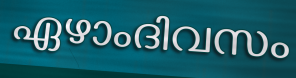
ഏഴാംദിവസം